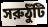
সরুঠুঁটি